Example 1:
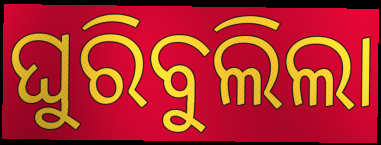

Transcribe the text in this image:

ଘୁରିବୁଲିଲା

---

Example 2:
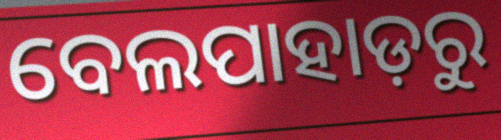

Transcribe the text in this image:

ବେଲପାହାଡ଼ରୁ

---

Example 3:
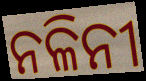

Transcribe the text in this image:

ନଳିନୀ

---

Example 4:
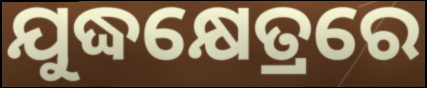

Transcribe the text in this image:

ଯୁଦ୍ଧକ୍ଷେତ୍ରରେ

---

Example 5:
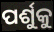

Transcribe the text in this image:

ପର୍ଶୁକୁ